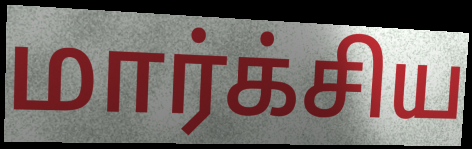
மார்க்சிய